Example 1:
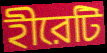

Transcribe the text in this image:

হীরেটি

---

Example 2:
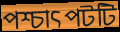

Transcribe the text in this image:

পশ্চাৎপটটি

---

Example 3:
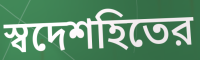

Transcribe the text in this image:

স্বদেশহিতের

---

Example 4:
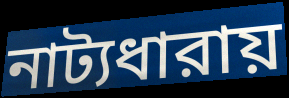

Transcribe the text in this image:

নাট্যধারায়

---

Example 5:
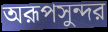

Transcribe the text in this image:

অরূপসুন্দর